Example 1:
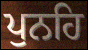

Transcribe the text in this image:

ਪੁਨਹਿ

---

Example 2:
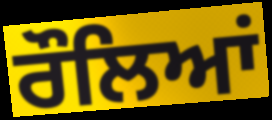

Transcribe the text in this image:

ਰੌਲਿਆਂ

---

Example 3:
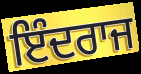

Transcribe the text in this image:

ਇੰਦਰਾਜ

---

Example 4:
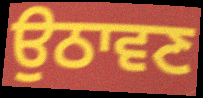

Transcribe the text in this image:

ਉਠਾਵਣ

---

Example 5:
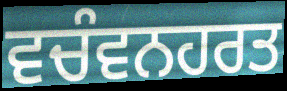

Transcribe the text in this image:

ਵਚੰਵਨਹਰਤ